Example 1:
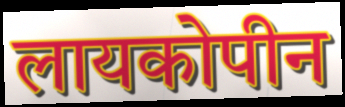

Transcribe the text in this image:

लायकोपीन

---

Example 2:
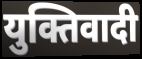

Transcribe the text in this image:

युक्तिवादी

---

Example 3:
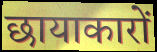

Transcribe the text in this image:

छायाकारों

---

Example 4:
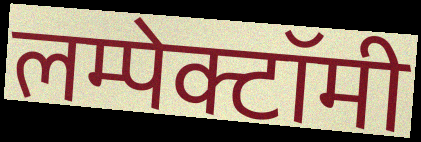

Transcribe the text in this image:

लम्पेक्टॉमी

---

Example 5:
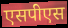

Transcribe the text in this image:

एसपीएस